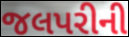
જલપરીની